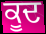
ਕੂਦ